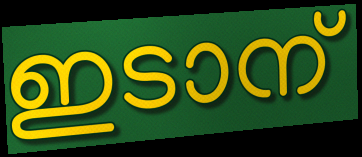
ഇടാന്